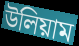
উলিয়াম